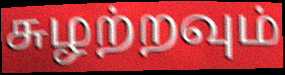
சுழற்றவும்